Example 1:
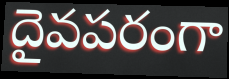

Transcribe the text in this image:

దైవపరంగా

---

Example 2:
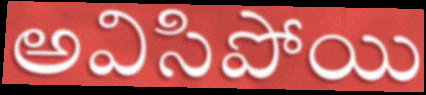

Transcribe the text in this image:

అవిసిపోయి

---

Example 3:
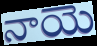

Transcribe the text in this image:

నాయె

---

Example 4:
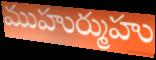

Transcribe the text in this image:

ముహుర్ముహు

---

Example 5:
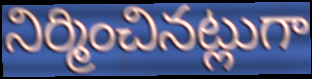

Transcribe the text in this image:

నిర్మించినట్లుగా